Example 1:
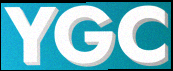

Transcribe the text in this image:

YGC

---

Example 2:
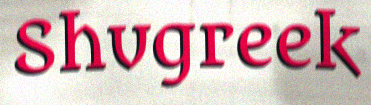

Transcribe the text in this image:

Shugreek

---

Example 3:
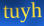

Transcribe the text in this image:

tuyh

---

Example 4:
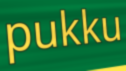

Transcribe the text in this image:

pukku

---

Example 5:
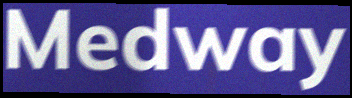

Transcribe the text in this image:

Medway